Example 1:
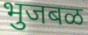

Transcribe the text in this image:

भुजबळ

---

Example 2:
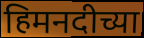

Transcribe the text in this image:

हिमनदीच्या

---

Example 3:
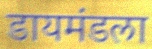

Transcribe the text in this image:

डायमंडला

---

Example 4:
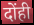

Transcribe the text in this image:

दोंही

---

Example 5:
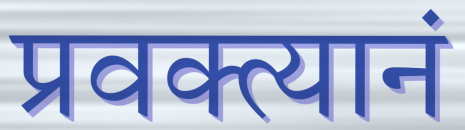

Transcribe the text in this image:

प्रवक्त्यानं